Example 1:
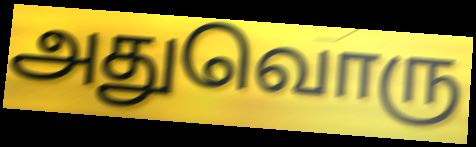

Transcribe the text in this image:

அதுவொரு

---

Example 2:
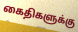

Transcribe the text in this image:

கைதிகளுக்கு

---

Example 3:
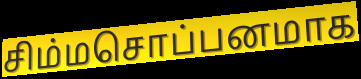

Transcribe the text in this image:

சிம்மசொப்பனமாக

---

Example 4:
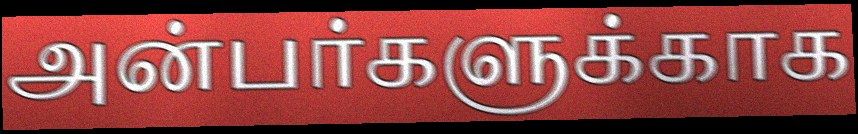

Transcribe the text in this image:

அன்பர்களுக்காக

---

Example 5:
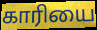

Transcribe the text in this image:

காரியை